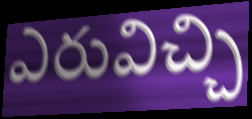
ఎరువిచ్చి